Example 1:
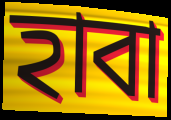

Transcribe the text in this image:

হাবা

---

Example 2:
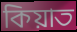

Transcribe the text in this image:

কিয়াত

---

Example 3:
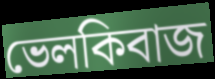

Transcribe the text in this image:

ভেলকিবাজ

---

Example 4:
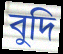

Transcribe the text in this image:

বুদি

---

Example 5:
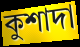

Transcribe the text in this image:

কুশাদা